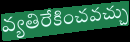
వ్యతిరేకించవచ్చు